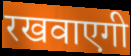
रखवाएगी